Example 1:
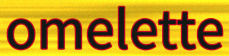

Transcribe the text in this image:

omelette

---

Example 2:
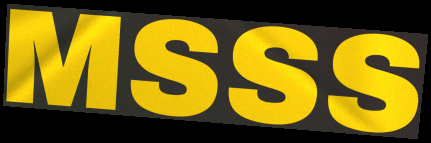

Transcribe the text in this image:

MSSS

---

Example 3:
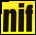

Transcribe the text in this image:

nif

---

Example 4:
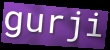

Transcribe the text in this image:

gurji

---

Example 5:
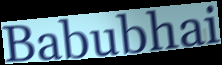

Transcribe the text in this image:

Babubhai